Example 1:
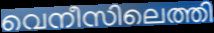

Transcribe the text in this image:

വെനീസിലെത്തി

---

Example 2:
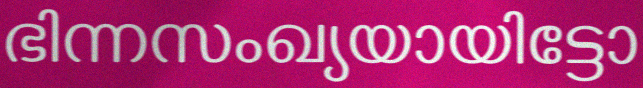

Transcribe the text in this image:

ഭിന്നസംഖ്യയായിട്ടോ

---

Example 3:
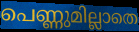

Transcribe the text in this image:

പെണ്ണുമില്ലാതെ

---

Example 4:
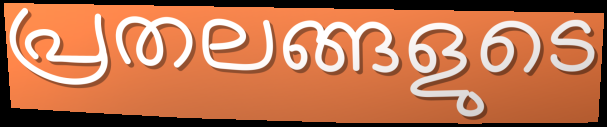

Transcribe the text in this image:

പ്രതലങ്ങളുടെ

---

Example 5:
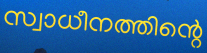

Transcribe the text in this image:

സ്വാധീനത്തിന്റെ